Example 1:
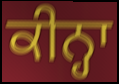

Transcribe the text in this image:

ਕੀਨ੍ਹ੍ਹਾ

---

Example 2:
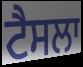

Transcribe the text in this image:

ਟੈਸਲਾ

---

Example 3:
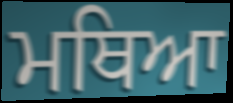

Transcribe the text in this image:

ਮਥਿਆ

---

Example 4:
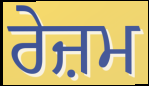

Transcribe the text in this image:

ਰੇਜ਼ਮ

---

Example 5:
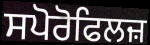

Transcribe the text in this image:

ਸਪੋਰੋਫਿਲਜ਼